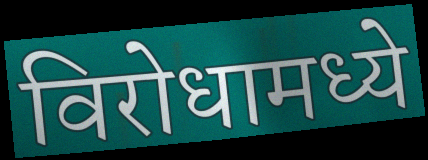
विरोधामध्ये